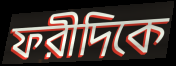
ফরীদিকে